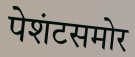
पेशंटसमोर